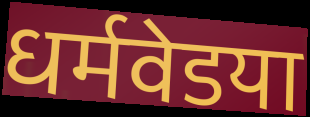
धर्मवेडया